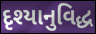
દૃશ્યાનુવિદ્ધ